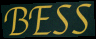
BESS